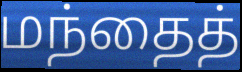
மந்தைத்